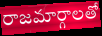
రాజమార్గాలతో